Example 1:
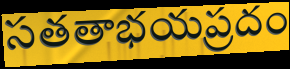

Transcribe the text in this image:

సతతాభయప్రదం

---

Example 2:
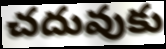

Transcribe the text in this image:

చదువుకు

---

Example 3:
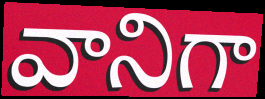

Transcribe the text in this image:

వానిగా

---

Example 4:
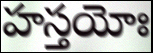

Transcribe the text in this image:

హస్తయోః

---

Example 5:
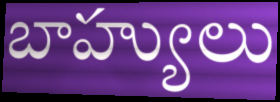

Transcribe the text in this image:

బాహ్యులు